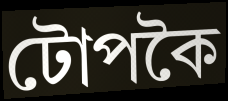
টোপকৈ